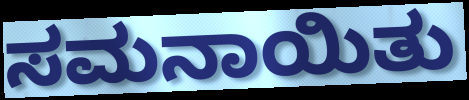
ಸಮನಾಯಿತು